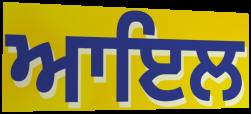
ਆਇਲ